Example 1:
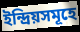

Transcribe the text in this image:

ইন্দ্রিয়সমূহে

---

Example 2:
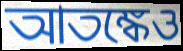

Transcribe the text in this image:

আতঙ্কেও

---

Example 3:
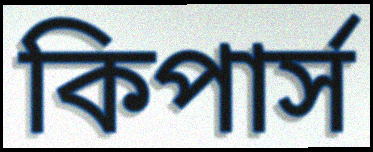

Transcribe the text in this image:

কিপার্স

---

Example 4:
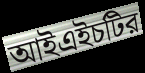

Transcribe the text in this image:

আইএইচটির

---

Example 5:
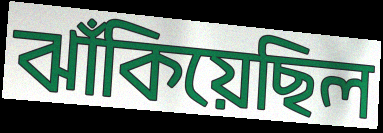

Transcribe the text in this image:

ঝাঁকিয়েছিল